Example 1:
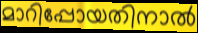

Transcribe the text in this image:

മാറിപ്പോയതിനാൽ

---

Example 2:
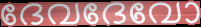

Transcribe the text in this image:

ദേവദേവോ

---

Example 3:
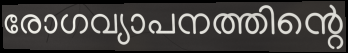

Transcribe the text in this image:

രോഗവ്യാപനത്തിന്റെ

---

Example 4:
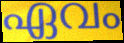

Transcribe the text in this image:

ഏവം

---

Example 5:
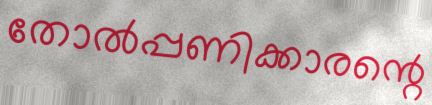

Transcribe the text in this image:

തോൽപ്പണിക്കാരന്റെ